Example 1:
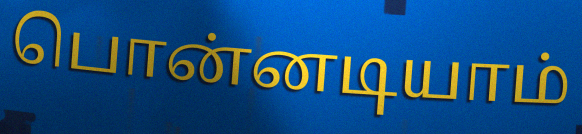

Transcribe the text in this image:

பொன்னடியாம்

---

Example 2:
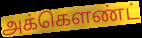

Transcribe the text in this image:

அக்கெளண்ட்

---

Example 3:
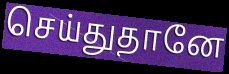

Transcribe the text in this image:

செய்துதானே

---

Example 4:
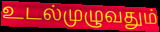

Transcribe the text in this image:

உடல்முழுவதும்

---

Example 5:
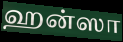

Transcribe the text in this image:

ஹன்ஸா